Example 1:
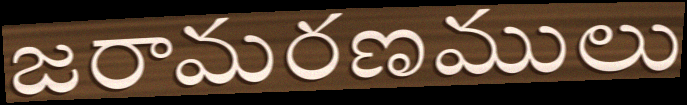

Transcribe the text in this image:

జరామరణములు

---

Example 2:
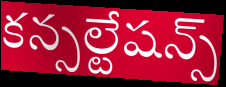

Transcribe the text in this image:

కన్సల్టేషన్స్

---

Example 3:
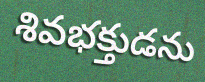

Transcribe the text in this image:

శివభక్తుడను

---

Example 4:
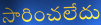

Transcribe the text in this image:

సారించలేదు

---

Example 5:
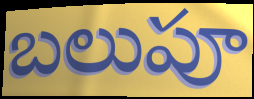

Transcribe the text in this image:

బలుపూ